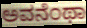
ಅವನೆಂಥಾ